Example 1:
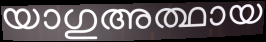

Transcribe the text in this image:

യാഗുഅത്ഥായ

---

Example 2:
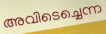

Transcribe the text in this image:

അവിടെച്ചെന്ന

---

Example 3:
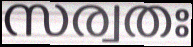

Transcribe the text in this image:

സര്വതഃ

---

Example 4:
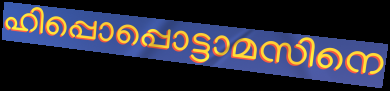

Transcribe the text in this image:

ഹിപ്പൊപ്പൊട്ടാമസിനെ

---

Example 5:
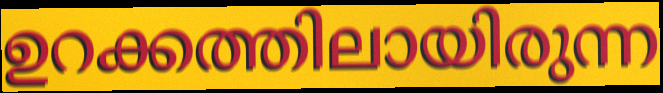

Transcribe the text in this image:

ഉറക്കത്തിലായിരുന്ന